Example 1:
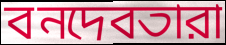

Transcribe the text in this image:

বনদেবতারা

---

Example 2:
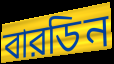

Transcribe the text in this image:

বারডিন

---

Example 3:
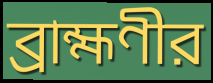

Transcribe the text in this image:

ব্রাহ্মণীর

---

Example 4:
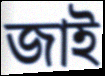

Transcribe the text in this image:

জাই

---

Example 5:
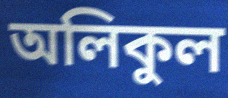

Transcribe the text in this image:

অলিকুল